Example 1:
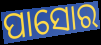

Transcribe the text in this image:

ପାସୋର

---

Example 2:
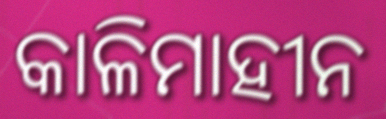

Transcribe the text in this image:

କାଳିମାହୀନ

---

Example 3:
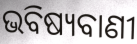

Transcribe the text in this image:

ଭବିଷ୍ଯବାଣୀ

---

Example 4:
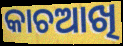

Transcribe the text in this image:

କାଚଆଖି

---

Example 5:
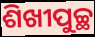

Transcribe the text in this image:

ଶିଖୀପୁଚ୍ଛ